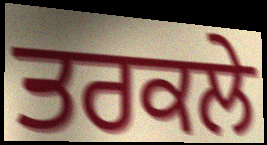
ਤਰਕਲੇ